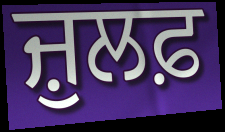
ਜ਼ੁਲਫ਼